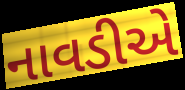
નાવડીએ